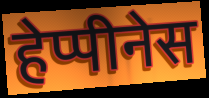
हेप्पीनेस